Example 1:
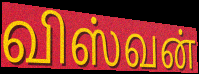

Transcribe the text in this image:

விஸ்வன்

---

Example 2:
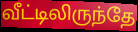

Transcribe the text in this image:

வீட்டிலிருந்தே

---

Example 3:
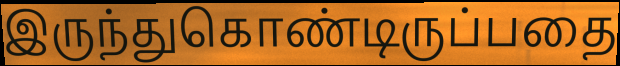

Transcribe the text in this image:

இருந்துகொண்டிருப்பதை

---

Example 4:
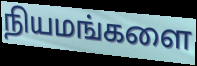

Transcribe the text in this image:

நியமங்களை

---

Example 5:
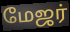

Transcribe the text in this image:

மேஜர்